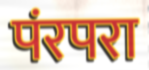
पंरपरा